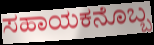
ಸಹಾಯಕನೊಬ್ಬ